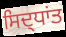
ਸਿਦ੍ਧਾਂਤ